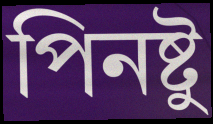
পিনষ্টু